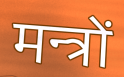
मन्त्रों